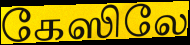
கேஸிலே